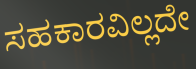
ಸಹಕಾರವಿಲ್ಲದೇ